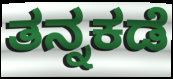
ತನ್ನಕಡೆ